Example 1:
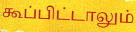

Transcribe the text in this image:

கூப்பிட்டாலும்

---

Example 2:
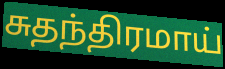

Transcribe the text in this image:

சுதந்திரமாய்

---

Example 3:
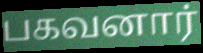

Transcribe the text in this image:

பகவனார்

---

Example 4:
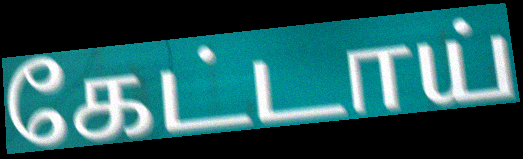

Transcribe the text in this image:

கேட்டாய்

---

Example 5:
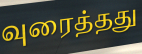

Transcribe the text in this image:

வுரைத்தது